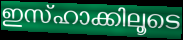
ഇസ്ഹാക്കിലൂടെ